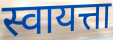
स्वायत्ता